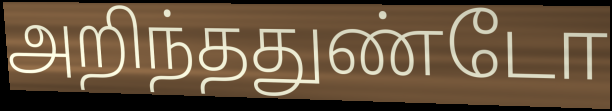
அறிந்ததுண்டோ